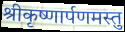
श्रीकृष्णार्पणमस्तु